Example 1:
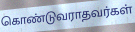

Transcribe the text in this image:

கொண்டுவராதவர்கள்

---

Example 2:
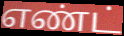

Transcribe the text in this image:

எண்ட்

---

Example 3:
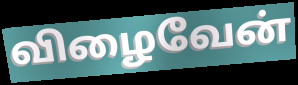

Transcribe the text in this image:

விழைவேன்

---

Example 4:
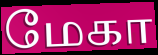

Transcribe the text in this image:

மேகா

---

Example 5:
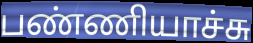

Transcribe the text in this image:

பண்ணியாச்சு